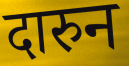
दारुन